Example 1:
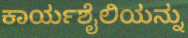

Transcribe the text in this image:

ಕಾರ್ಯಶೈಲಿಯನ್ನು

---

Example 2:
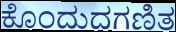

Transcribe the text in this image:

ಕೊಂದುದಗಣಿತ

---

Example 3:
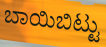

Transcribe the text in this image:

ಬಾಯಿಬಿಟ್ಟು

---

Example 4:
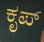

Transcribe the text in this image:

ಕೃಪ್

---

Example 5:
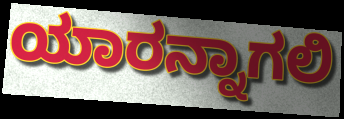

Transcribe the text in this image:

ಯಾರನ್ನಾಗಲಿ